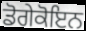
ਡੋਗੇਕੋਇਨ